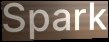
Spark